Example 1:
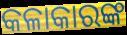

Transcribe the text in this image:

କଳାକାରଙ୍କ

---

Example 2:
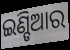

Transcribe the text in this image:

ଇଣ୍ଡିଆର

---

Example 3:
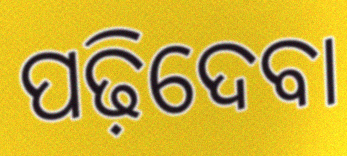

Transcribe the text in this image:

ପଢ଼ିଦେବା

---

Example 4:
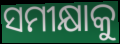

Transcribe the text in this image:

ସମୀକ୍ଷାକୁ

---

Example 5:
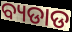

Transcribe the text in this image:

ବ୍ୟଡାଡ